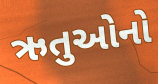
ઋતુઓનો